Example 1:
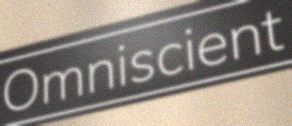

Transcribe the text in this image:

Omniscient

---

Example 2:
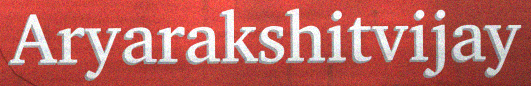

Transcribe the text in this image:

Aryarakshitvijay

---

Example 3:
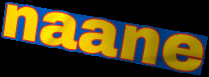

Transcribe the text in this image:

naane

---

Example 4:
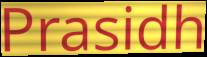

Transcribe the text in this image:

Prasidh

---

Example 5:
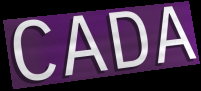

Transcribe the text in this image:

CADA